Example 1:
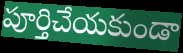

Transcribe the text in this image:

పూర్తిచేయకుండా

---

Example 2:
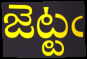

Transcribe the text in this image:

జెట్టఁ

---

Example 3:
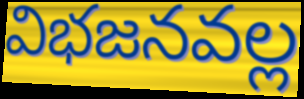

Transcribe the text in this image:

విభజనవల్ల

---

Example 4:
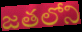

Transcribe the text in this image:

జతలోని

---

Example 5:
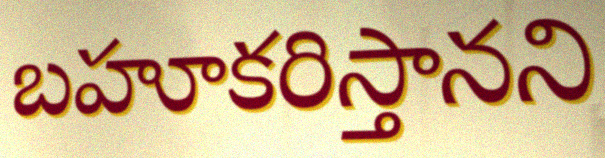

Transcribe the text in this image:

బహూకరిస్తానని